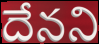
దేనని